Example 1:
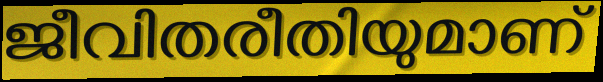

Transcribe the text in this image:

ജീവിതരീതിയുമാണ്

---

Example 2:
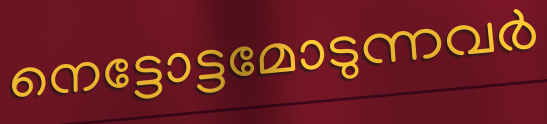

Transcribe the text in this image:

നെട്ടോട്ടമോടുന്നവർ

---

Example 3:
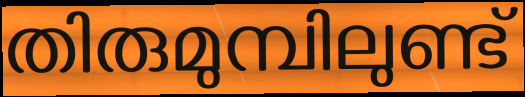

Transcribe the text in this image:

തിരുമുമ്പിലുണ്ട്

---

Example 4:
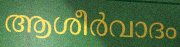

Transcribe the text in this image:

ആശീർവാദം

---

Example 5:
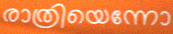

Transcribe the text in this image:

രാത്രിയെന്നോ